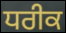
ਧਰੀਕ